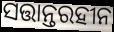
ସତ୍ତାନ୍ତରହୀନ